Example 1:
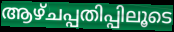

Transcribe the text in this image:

ആഴ്ചപ്പതിപ്പിലൂടെ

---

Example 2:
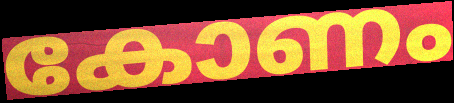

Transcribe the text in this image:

കോണം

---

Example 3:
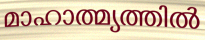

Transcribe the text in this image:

മാഹാത്മ്യത്തിൽ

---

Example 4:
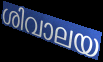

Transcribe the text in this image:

ശിവാലയ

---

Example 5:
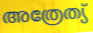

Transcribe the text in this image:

അത്രേത്യ്